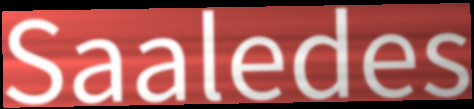
Saaledes